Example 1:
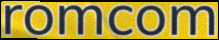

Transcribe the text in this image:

romcom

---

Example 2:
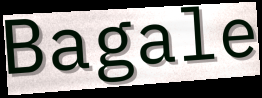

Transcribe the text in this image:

Bagale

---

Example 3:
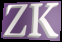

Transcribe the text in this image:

ZK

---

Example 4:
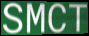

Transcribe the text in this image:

SMCT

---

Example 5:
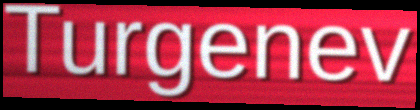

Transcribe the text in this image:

Turgenev